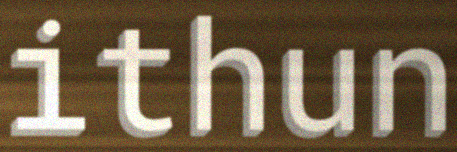
ithun